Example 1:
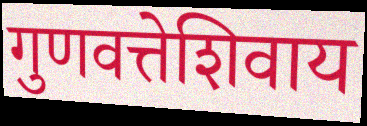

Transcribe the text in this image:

गुणवत्तेशिवाय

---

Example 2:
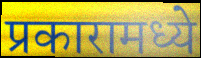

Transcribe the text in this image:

प्रकारामध्ये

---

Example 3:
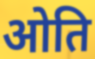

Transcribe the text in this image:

ओति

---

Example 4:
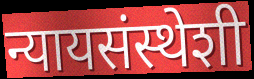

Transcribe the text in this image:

न्यायसंस्थेशी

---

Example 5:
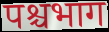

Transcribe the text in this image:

पश्चभाग